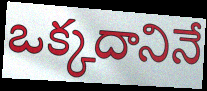
ఒక్కదానినే